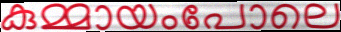
കുമ്മായംപോലെ